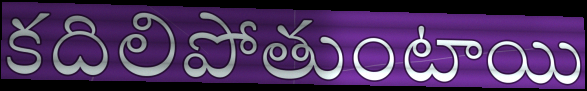
కదిలిపోతుంటాయి